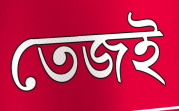
তেজই